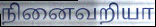
நினைவறியா